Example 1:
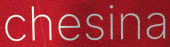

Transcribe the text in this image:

chesina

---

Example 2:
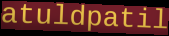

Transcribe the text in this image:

atuldpatil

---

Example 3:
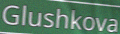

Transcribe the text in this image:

Glushkova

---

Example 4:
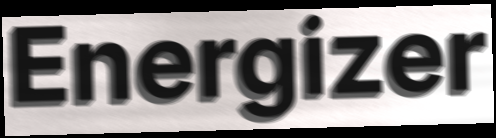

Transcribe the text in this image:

Energizer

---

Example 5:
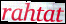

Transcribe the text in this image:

rahtat